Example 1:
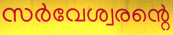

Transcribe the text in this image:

സർവേശ്വരന്റെ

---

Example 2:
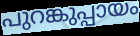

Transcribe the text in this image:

പുറങ്കുപ്പായം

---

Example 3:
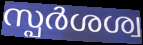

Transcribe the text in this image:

സ്പർശശ്വ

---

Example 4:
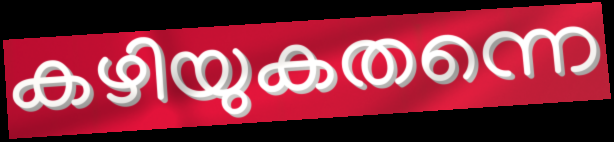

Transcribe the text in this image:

കഴിയുകതന്നെ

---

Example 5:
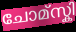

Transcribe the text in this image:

ചോമ്സ്കി